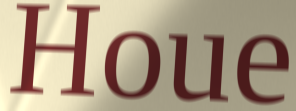
Houe